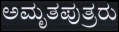
ಅಮೃತಪುತ್ರರು